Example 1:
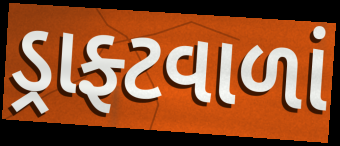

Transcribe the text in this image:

ડ્રાફ્ટવાળાં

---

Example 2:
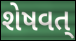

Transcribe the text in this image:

શેષવત્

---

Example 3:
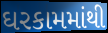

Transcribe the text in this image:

ઘરકામમાંથી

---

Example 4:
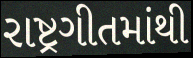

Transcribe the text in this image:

રાષ્ટ્રગીતમાંથી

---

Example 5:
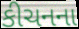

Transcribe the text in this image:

કીચનના